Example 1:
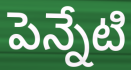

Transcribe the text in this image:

పెన్నేటి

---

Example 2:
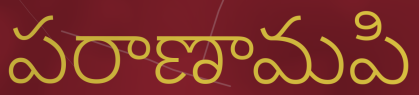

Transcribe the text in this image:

పరాణామపి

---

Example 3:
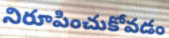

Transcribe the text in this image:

నిరూపించుకోవడం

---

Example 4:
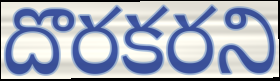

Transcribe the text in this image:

దొరకరని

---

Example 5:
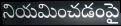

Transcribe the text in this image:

నియమించడంపై